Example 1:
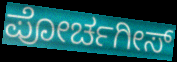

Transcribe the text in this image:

ಪೋರ್ಚಗೀಸ್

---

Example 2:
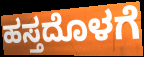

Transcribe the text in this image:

ಹಸ್ತದೊಳಗೆ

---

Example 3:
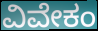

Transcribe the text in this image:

ವಿವೇಕಂ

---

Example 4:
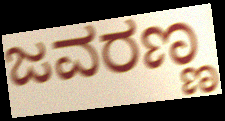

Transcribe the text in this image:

ಜವರಣ್ಣ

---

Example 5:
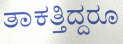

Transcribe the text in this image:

ತಾಕತ್ತಿದ್ದರೂ